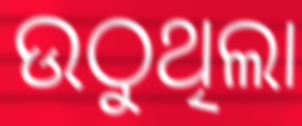
ଉଠୁଥିଲା